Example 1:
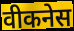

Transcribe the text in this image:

वीकनेस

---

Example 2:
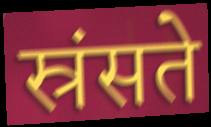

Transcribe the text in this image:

स्रंसते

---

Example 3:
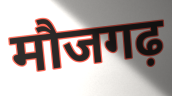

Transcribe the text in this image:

मौजगढ़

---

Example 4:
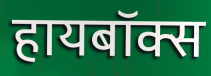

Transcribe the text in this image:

हायबॉक्स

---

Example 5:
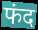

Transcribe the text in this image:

फंद